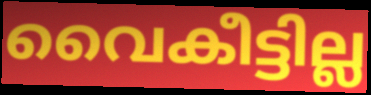
വൈകീട്ടില്ല